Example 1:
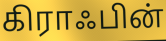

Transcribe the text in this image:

கிராஃபின்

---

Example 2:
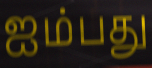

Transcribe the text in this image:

ஐம்பது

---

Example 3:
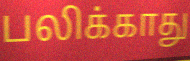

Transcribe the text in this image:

பலிக்காது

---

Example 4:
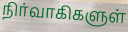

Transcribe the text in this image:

நிர்வாகிகளுள்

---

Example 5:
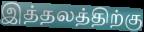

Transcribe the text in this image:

இத்தலத்திற்கு